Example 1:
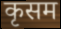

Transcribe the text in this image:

कृसम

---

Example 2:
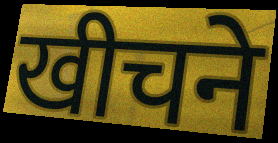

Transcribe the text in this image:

खीचने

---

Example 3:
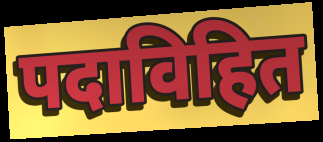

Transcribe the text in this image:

पदाविहित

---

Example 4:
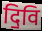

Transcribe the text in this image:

दि॒वि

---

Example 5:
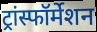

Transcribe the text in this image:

ट्रांस्फॉर्मेशन